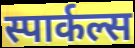
स्पार्कल्स